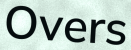
Overs